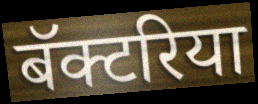
बॅक्टरिया